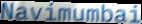
Navimumbai